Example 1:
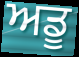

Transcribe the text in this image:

ਅਡੂ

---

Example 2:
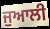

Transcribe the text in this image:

ਜੁਆਲੀ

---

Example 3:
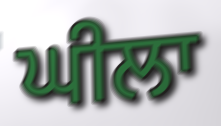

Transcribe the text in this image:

ਘੀਲਾ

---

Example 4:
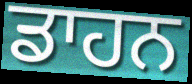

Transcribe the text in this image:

ਡਾਹਨ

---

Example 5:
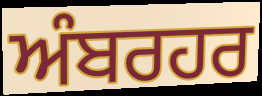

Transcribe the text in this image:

ਅੰਬਰਹਰ